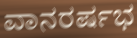
ವಾನರರ್ಷಭ